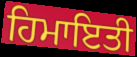
ਹਿਮਾਇਤੀ